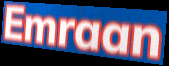
Emraan